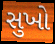
સુખો